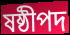
ষষ্ঠীপদ